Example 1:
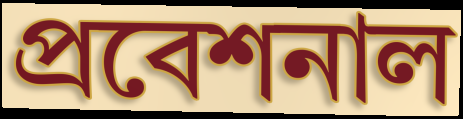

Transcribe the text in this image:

প্রবেশনাল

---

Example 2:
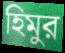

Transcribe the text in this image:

হিমুর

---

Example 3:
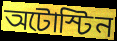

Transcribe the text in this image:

অটোস্টিন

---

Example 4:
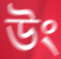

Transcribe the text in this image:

উং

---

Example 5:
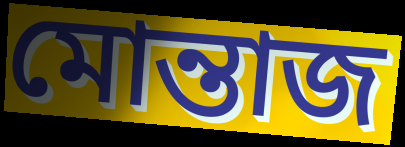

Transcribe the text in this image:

মোন্তাজ